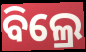
ବିଲ୍ରେ